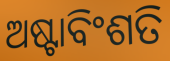
ଅଷ୍ଟାବିଂଶତି